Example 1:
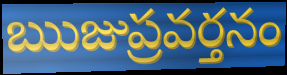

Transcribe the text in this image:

ఋజుప్రవర్తనం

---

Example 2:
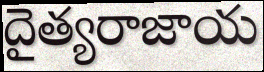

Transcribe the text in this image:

దైత్యరాజాయ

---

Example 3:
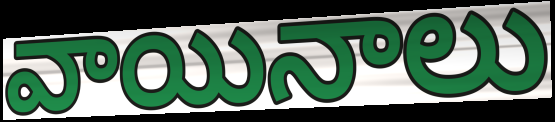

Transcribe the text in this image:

వాయినాలు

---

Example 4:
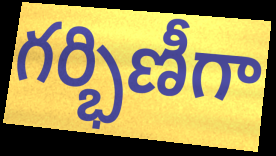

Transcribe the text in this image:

గర్భిణీగా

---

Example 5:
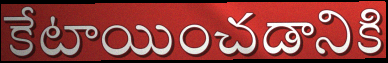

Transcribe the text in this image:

కేటాయించడానికి